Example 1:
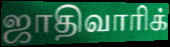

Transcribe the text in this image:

ஜாதிவாரிக்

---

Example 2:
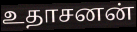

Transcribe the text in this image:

உதாசனன்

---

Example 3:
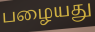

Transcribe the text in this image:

பழையது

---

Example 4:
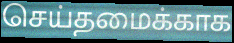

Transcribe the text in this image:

செய்தமைக்காக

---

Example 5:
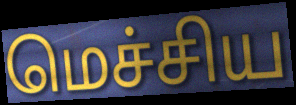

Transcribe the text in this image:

மெச்சிய